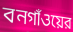
বনগাঁওয়ের